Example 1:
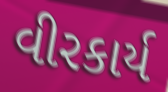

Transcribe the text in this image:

વીરકાર્ય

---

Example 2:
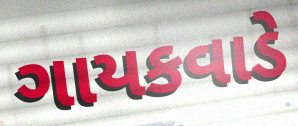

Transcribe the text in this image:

ગાયકવાડે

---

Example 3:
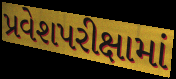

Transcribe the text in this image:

પ્રવેશપરીક્ષામાં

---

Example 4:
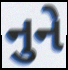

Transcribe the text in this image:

નુને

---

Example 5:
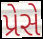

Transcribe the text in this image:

પ્રેસે